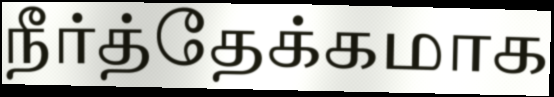
நீர்த்தேக்கமாக